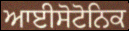
ਆਈਸੋਟੋਨਿਕ